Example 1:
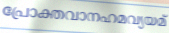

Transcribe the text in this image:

പ്രോക്തവാനഹമവ്യയമ്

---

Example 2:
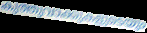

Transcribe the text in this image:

കുത്തുവാക്കുകളുടെയും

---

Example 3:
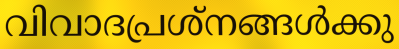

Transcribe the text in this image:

വിവാദപ്രശ്നങ്ങൾക്കു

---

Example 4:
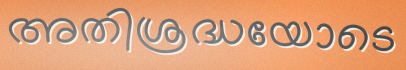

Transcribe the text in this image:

അതിശ്രദ്ധയോടെ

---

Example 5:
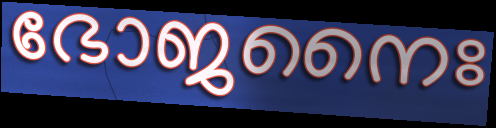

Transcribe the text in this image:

ഭോജനൈഃ